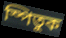
স্পিতুক